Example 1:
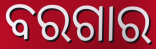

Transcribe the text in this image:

ବରଗାର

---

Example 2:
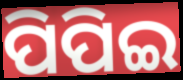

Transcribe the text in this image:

ପିପିଇ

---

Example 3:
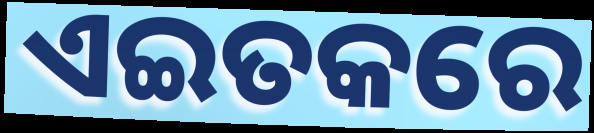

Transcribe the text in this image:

ଏଇତକରେ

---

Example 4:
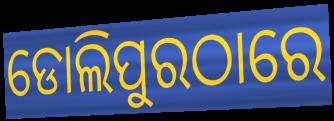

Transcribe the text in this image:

ଡୋଲିପୁରଠାରେ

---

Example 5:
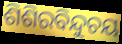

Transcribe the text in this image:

ଶିଶିରବିନ୍ଦୁଚୟ